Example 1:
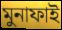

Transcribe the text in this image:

মুনাফাই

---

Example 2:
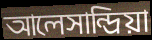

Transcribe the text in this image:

আলেসান্দ্রিয়া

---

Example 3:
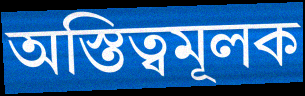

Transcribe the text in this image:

অস্তিত্বমূলক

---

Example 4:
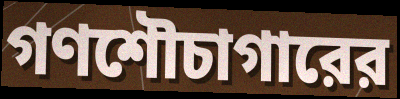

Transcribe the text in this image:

গণশৌচাগারের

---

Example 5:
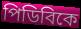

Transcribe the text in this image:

পিডিবিকে